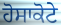
ਹੋਸਾਕੋਟੇ